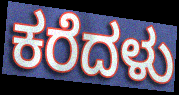
ಕರೆದಳು